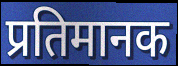
प्रतिमानक